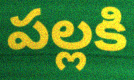
పల్లకి